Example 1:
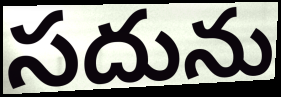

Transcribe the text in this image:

సదును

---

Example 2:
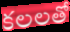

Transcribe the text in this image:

కలలతో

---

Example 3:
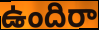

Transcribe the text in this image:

ఉందిరా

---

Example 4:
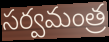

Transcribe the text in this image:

సర్వమంత్ర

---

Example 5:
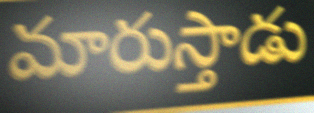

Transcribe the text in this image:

మారుస్తాడు